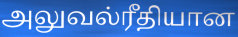
அலுவல்ரீதியான